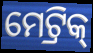
ମେଟ୍ରିକ୍